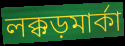
লক্কড়মার্কা